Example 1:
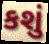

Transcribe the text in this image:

કશું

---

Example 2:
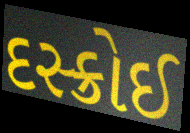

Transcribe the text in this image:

દસ્ક્રોઈ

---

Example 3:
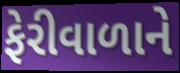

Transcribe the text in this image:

ફેરીવાળાને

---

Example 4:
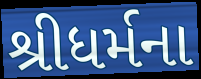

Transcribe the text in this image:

શ્રીધર્મના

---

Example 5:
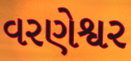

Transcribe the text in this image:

વરણેશ્વર